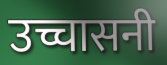
उच्चासनी